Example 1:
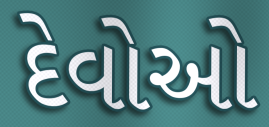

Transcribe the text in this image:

દેવોઓ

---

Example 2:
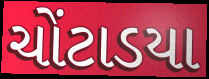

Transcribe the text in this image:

ચોંટાડયા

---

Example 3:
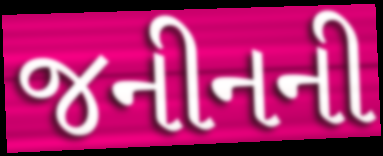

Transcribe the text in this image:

જનીનની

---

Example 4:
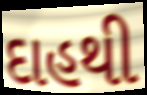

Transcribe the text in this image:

દાહથી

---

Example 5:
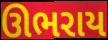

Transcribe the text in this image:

ઊભરાય